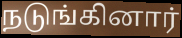
நடுங்கினார்